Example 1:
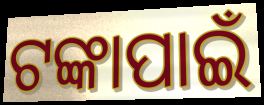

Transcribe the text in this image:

ଟଙ୍କାପାଇଁ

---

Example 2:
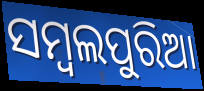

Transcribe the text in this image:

ସମ୍ବଲପୁରିଆ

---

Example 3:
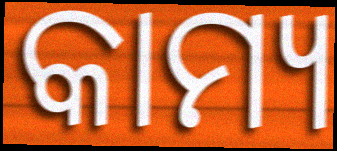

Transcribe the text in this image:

କାମ୍ୟ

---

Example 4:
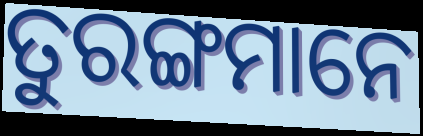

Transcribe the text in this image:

ତୁରଙ୍ଗମାନେ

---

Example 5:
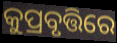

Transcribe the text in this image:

କୁପ୍ରବୃତ୍ତିରେ